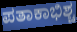
ಪತಾಕಾಭಿಶ್ಚ